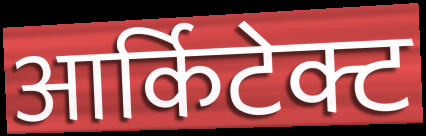
आर्किटेक्ट